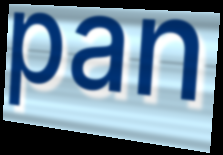
pan